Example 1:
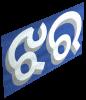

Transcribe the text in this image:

ଝର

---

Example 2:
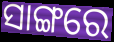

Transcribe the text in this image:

ସାଙ୍ଗରେ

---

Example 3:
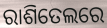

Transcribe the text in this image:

ରାଶିତେଲରେ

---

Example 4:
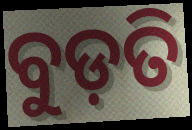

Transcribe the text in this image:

ବୁଡ଼ତି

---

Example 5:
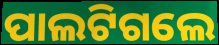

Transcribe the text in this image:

ପାଲଟିଗଲେ